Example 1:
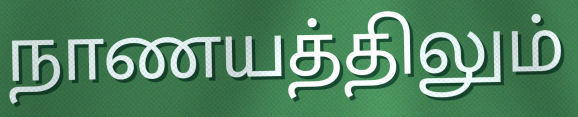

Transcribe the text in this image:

நாணயத்திலும்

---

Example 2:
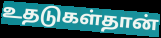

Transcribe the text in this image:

உதடுகள்தான்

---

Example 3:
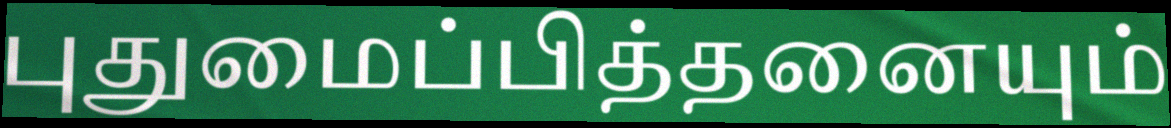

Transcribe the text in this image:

புதுமைப்பித்தனையும்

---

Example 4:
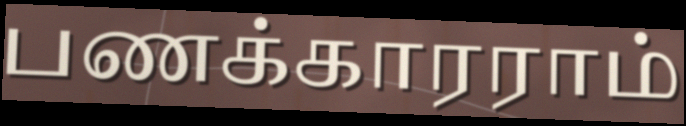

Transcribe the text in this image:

பணக்காரராம்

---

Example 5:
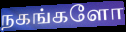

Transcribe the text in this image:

நகங்களோ